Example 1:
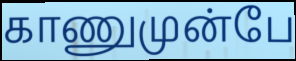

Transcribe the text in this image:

காணுமுன்பே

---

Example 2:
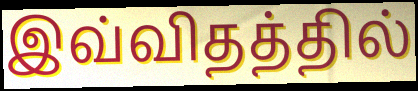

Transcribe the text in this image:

இவ்விதத்தில்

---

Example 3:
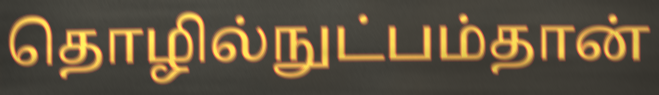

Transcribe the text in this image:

தொழில்நுட்பம்தான்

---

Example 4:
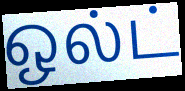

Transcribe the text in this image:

ஒல்ட்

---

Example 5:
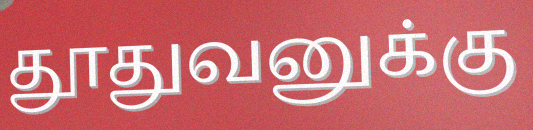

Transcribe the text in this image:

தூதுவனுக்கு